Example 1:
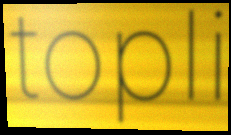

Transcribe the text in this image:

topli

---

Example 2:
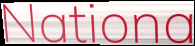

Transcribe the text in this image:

Nationa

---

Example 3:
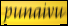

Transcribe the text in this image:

punaivu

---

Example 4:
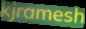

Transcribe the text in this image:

kjramesh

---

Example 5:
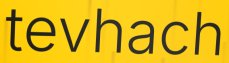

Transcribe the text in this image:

tevhach